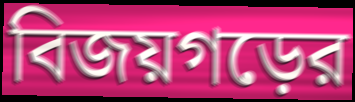
বিজয়গড়ের